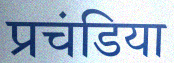
प्रचंडिया